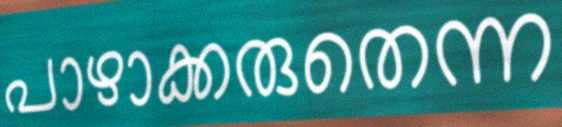
പാഴാക്കരുതെന്ന